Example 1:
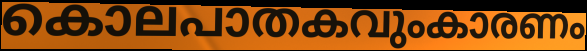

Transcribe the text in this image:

കൊലപാതകവുംകാരണം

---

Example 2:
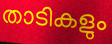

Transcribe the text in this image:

താടികളും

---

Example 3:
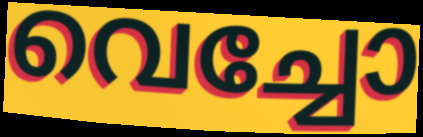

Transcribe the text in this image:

വെച്ചോ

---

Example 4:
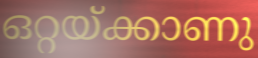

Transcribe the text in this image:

ഒറ്റയ്ക്കാണു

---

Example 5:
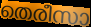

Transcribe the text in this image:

തെരീസാ